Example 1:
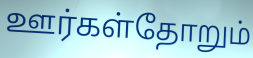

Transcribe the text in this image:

ஊர்கள்தோறும்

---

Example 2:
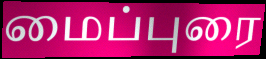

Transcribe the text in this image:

மைப்புரை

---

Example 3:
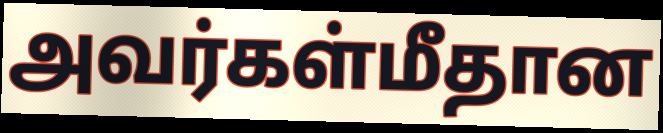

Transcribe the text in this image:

அவர்கள்மீதான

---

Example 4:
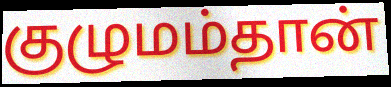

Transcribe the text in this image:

குழுமம்தான்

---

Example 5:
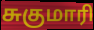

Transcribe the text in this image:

சுகுமாரி